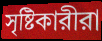
সৃষ্টিকারীরা